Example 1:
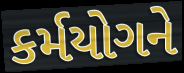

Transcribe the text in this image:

કર્મયોગને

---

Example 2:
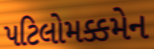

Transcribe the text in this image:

પટિલોમક્કમેન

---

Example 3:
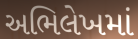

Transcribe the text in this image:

અભિલેખમાં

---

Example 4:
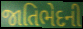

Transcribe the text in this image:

જાતિભેદની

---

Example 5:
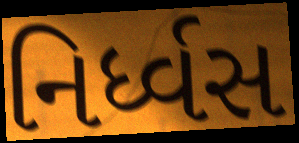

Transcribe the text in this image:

નિર્ધ્વસ